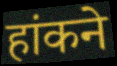
हांकने